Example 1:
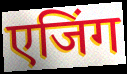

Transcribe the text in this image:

एजिंग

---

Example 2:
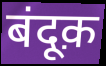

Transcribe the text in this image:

बंदूक़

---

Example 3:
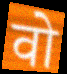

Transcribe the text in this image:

वो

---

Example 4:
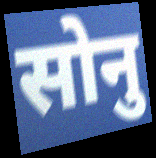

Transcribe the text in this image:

सोनु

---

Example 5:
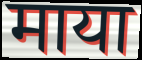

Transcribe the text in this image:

माया